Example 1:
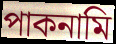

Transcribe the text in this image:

পাকনামি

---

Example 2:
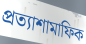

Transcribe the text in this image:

প্রত্যাশামাফিক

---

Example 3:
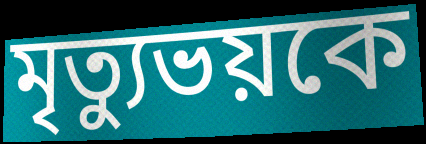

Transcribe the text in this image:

মৃত্যুভয়কে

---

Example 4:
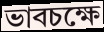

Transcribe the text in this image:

ভাবচক্ষে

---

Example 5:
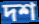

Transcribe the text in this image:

দশ